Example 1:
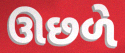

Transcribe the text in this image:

ઊછળે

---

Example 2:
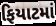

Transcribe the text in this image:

ફિયાટમાં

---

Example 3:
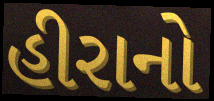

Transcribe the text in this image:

હીરાનો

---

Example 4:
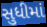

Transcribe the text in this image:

સુધીમાં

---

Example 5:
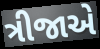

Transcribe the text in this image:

ત્રીજાએ